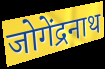
जोगेंद्रनाथ